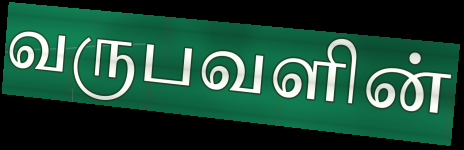
வருபவளின்